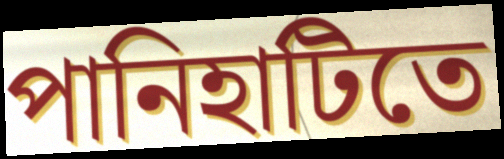
পানিহাটিতে